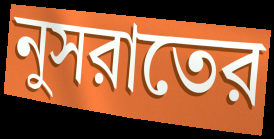
নুসরাতের